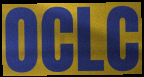
OCLC